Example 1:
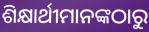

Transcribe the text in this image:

ଶିକ୍ଷାର୍ଥୀମାନଙ୍କଠାରୁ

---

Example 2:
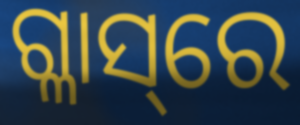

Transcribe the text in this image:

ଗ୍ଳାସ୍‌ରେ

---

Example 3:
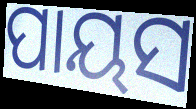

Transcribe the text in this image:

ପାୟସ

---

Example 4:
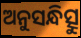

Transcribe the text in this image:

ଅନୁସନ୍ଧିତ୍ସୁ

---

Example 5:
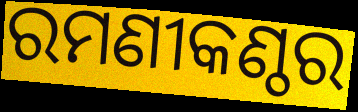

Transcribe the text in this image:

ରମଣୀକଣ୍ଠର